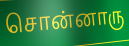
சொன்னாரு